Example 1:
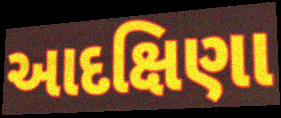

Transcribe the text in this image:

આદક્ષિણા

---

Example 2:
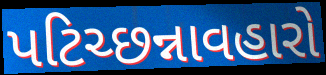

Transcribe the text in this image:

પટિચ્છન્નાવહારો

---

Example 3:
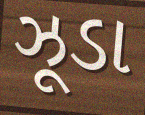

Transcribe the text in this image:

ઝૂડા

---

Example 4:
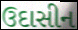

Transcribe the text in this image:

ઉદાસીન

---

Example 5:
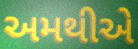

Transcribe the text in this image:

અમથીએ